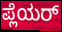
ಪ್ಲೆಯರ್